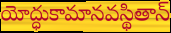
యోద్ధుకామానవస్థితాన్